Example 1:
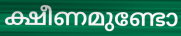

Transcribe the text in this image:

ക്ഷീണമുണ്ടോ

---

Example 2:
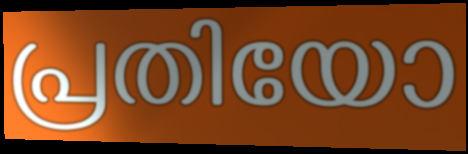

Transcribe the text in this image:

പ്രതിയോ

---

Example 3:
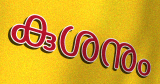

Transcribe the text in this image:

കുശനും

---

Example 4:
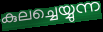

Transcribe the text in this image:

കുലച്ചെയ്യുന്ന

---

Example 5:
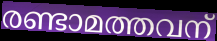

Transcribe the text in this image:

രണ്ടാമത്തവന്